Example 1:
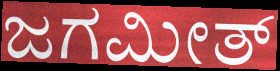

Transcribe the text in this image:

ಜಗಮೀತ್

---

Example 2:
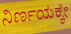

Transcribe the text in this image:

ನಿರ್ಣಯಕ್ಕೇ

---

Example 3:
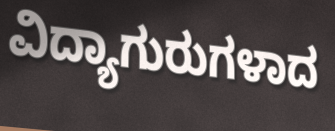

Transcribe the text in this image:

ವಿದ್ಯಾಗುರುಗಳಾದ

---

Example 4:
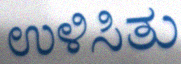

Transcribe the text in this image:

ಉಳಿಸಿತು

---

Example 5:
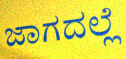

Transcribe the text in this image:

ಜಾಗದಲ್ಲೆ